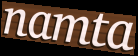
namta